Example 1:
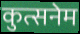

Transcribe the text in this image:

कुत्सनेम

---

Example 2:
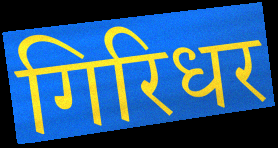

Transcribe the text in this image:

गिरिधर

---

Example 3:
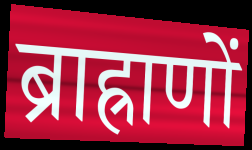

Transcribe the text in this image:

ब्राह्राणों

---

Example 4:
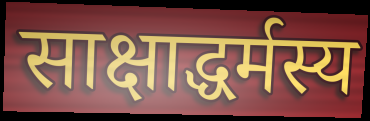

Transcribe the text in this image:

साक्षाद्धर्मस्य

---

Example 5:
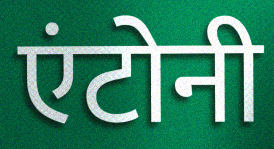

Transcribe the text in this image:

एंटोनी